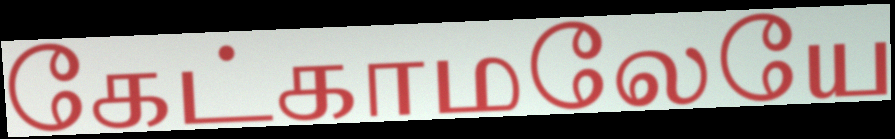
கேட்காமலேயே